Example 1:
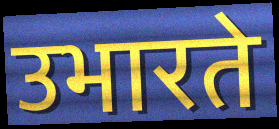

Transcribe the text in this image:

उभारते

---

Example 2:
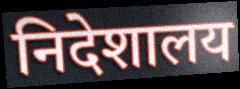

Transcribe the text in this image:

निदेशालय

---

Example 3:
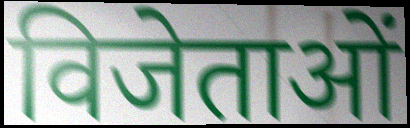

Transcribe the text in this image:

विजेताओं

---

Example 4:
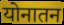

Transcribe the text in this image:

योनातन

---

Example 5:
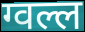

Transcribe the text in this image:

ग्वल्ल